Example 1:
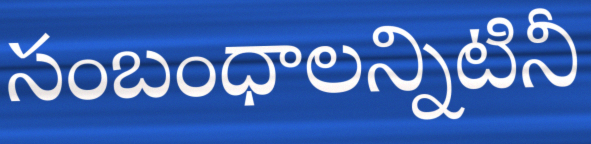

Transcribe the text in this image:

సంబంధాలన్నిటినీ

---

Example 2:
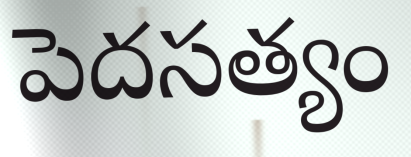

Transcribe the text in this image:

పెదసత్యం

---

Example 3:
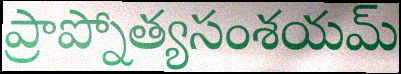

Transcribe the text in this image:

ప్రాప్నోత్యసంశయమ్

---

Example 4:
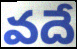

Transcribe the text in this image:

వదే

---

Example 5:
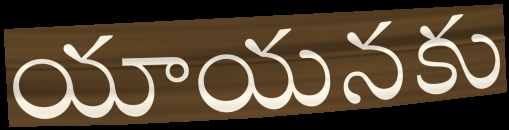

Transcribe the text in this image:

యాయనకు